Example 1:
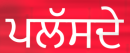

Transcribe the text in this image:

ਪਲੱਸਦੇ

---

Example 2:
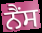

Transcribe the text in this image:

ਨੈਂਸ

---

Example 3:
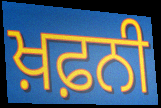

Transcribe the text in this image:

ਖ਼ਫ਼ਨੀ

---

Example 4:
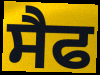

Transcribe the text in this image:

ਸੈਫ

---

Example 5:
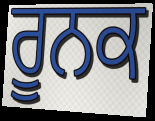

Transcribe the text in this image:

ਰੂਨਕ